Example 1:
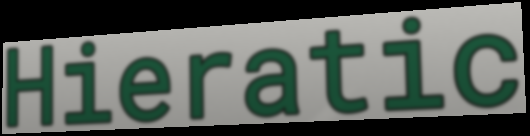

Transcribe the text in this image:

Hieratic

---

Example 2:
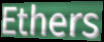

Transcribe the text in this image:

Ethers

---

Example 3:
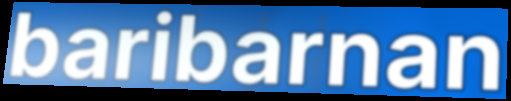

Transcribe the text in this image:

baribarnan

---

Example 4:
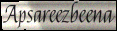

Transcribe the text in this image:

Apsareezbeena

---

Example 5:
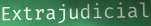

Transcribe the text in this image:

Extrajudicial